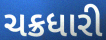
ચક્રધારી